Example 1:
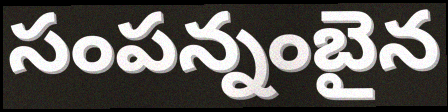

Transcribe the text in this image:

సంపన్నంబైన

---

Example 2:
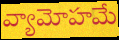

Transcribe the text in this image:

వ్యామోహమే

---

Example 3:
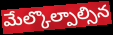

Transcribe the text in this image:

మేల్కొల్పాల్సిన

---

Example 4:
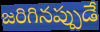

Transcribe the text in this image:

జరిగినప్పుడే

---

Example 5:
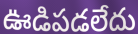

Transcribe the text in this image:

ఊడిపడలేదు